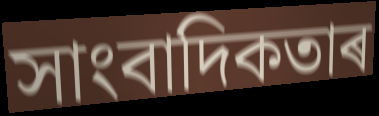
সাংবাদিকতাৰ